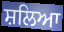
ਸ਼ਲਿਆ